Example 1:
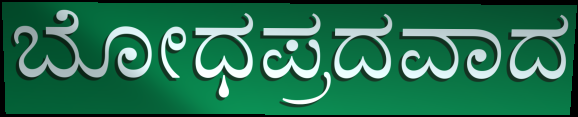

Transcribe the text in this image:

ಬೋಧಪ್ರದವಾದ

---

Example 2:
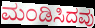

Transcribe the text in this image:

ಮಂಡಿಸಿದವು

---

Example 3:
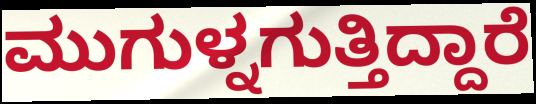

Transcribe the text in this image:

ಮುಗುಳ್ನಗುತ್ತಿದ್ದಾರೆ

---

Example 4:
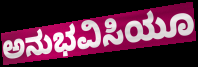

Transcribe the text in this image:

ಅನುಭವಿಸಿಯೂ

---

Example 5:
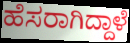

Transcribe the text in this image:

ಹೆಸರಾಗಿದ್ದಾಳೆ